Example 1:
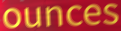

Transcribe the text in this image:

ounces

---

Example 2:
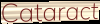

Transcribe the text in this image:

Cataract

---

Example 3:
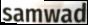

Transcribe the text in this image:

samwad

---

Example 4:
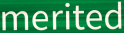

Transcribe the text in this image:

merited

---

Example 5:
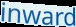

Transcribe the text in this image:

inward